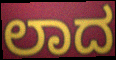
ಲಾದ